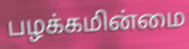
பழக்கமின்மை